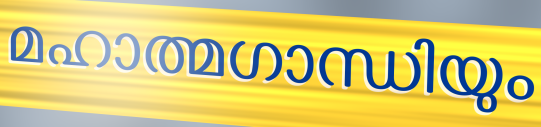
മഹാത്മഗാന്ധിയും